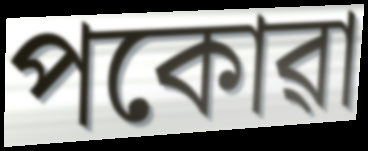
পকোৱা